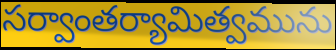
సర్వాంతర్యామిత్వమును